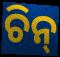
ଚିନ୍